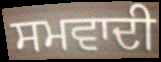
ਸਮਵਾਦੀ